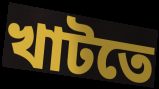
খাটতে